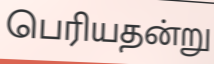
பெரியதன்று